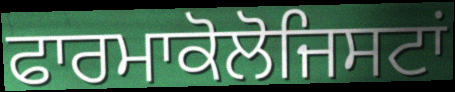
ਫਾਰਮਾਕੋਲੋਜਿਸਟਾਂ